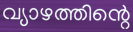
വ്യാഴത്തിന്റെ